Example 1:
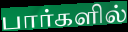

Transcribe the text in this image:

பார்களில்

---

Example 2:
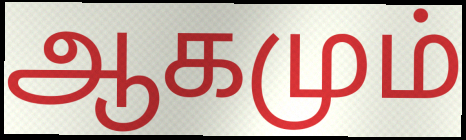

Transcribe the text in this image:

ஆகமும்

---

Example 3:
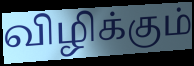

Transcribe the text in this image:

விழிக்கும்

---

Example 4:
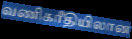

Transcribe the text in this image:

வணிகரீதியிலான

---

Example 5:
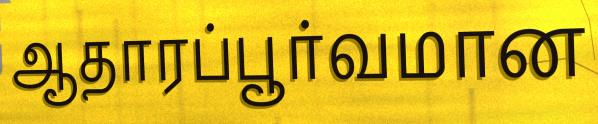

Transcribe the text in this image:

ஆதாரப்பூர்வமான